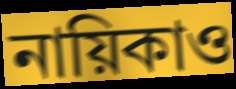
নায়িকাও